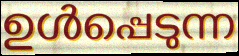
ഉൾപ്പെടുന്ന